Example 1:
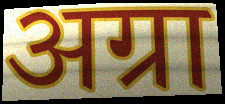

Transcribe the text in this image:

अग्रा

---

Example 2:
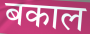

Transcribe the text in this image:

बकाल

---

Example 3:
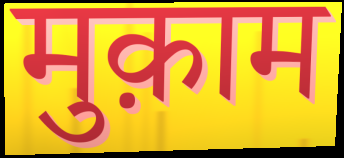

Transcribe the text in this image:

मुक़ाम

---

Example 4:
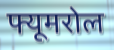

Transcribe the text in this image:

फ्यूमरोल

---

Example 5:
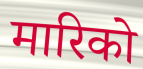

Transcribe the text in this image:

मारिको